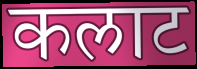
कलाट